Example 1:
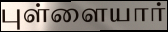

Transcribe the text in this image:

புள்ளையார்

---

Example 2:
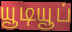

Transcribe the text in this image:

யூடியூப்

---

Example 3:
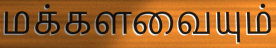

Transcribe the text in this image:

மக்களவையும்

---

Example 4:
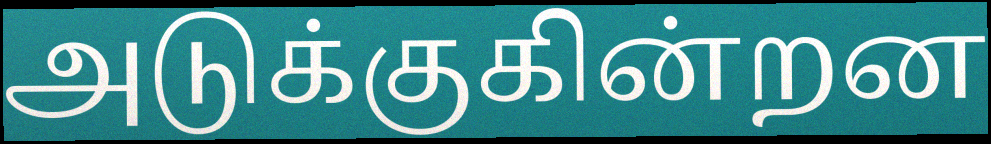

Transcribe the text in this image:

அடுக்குகின்றன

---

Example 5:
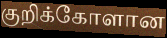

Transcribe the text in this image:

குறிக்கோளான